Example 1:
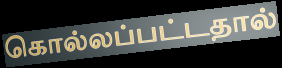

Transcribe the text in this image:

கொல்லப்பட்டதால்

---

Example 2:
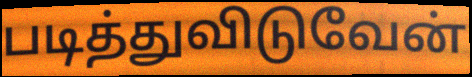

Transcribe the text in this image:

படித்துவிடுவேன்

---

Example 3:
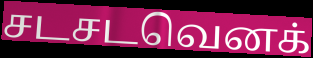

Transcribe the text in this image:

சடசடவெனக்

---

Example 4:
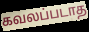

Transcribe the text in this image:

கவலப்படாத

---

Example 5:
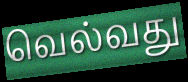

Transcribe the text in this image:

வெல்வது